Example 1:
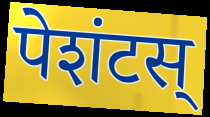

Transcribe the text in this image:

पेशंटस्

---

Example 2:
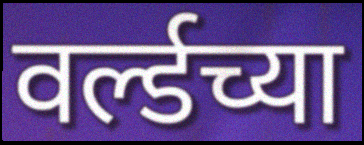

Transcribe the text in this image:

वर्ल्डच्या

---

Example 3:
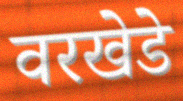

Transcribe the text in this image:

वरखेडे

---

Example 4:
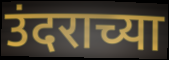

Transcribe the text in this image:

उंदराच्या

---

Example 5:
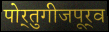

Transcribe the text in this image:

पोर्तुगीजपूर्व